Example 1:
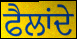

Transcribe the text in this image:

ਫੈਲਾਂਦੇ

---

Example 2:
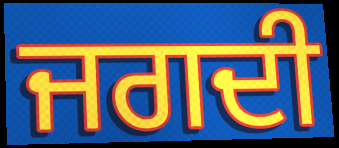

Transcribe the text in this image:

ਜਗਦੀ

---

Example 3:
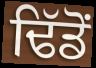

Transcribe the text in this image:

ਢਿੱਡੋਂ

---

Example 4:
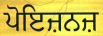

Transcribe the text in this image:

ਪੋਇਜ਼ਨਜ਼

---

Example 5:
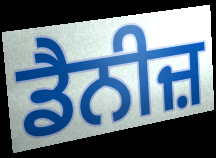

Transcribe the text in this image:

ਡੈਨੀਜ਼